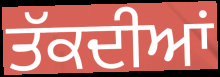
ਤੱਕਦੀਆਂ